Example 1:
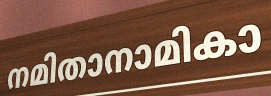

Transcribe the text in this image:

നമിതാനാമികാ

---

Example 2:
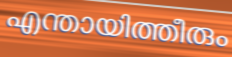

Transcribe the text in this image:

എന്തായിത്തീരും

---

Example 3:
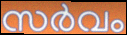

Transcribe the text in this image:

സർവം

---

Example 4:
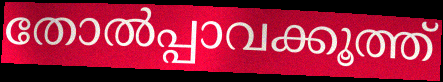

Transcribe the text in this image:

തോൽപ്പാവക്കൂത്ത്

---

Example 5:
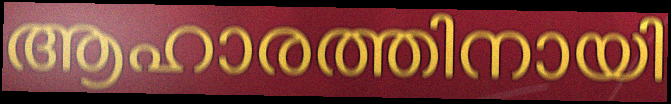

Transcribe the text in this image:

ആഹാരത്തിനായി